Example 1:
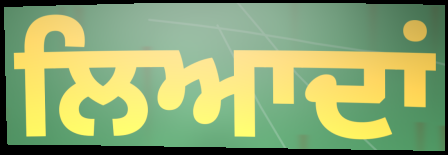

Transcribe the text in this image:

ਲਿਆਦਾਂ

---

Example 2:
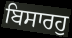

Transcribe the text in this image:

ਬਿਸਾਰਹੁ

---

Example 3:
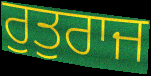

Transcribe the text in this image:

ਰੁਤੁਰਾਜ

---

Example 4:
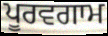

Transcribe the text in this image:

ਪੂਰਵਗਾਮ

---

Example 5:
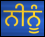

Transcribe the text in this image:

ਨੀਨੂੰ